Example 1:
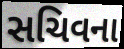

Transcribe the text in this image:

સચિવના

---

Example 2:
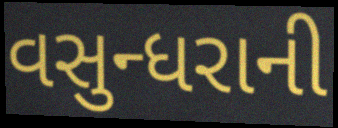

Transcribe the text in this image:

વસુન્ધરાની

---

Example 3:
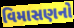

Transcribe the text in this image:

વિમાસણનો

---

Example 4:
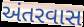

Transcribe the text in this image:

અંતરવાસ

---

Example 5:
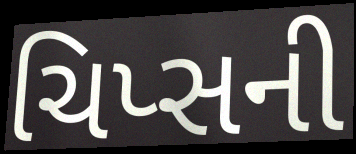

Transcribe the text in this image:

ચિપ્સની